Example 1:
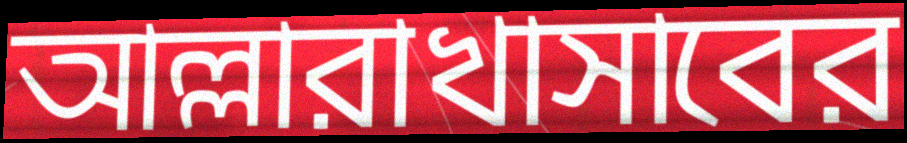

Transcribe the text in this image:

আল্লারাখাসাবের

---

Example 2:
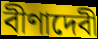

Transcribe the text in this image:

বীণাদেবী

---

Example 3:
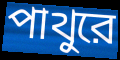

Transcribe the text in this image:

পাথুরে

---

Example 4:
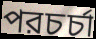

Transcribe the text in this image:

পরচর্চা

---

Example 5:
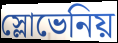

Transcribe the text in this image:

স্লোভেনিয়